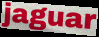
jaguar